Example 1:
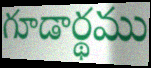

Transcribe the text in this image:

గూడార్థము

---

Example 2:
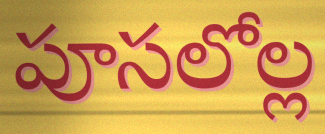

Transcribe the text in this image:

పూసలోల్ల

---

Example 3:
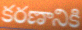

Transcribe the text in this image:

కరణానికి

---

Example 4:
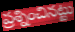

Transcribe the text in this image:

ప్రశ్నించినట్టు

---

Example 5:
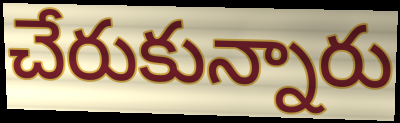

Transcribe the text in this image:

చేరుకున్నారు